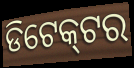
ଡିଟେକ୍‌ଟର